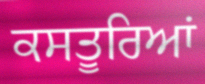
ਕਸਤੂਰਿਆਂ